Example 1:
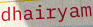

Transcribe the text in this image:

dhairyam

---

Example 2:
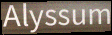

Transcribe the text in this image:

Alyssum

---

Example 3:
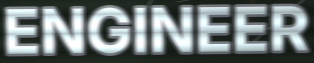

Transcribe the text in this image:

ENGINEER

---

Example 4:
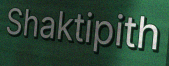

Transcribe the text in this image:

Shaktipith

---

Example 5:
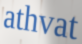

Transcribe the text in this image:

athvat